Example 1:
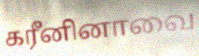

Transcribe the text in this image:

கரீனினாவை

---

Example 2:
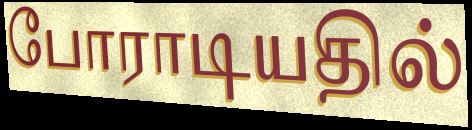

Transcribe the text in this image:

போராடியதில்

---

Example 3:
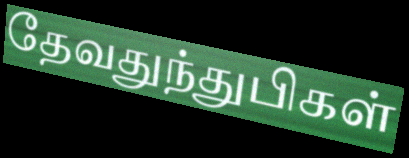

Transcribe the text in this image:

தேவதுந்துபிகள்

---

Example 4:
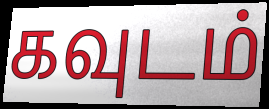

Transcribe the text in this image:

கவுடம்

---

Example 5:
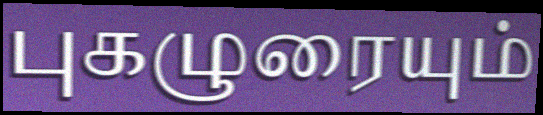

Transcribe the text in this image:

புகழுரையும்